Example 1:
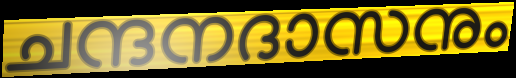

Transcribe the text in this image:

ചന്ദനദാസനും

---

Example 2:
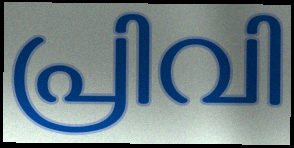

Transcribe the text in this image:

പ്രിവി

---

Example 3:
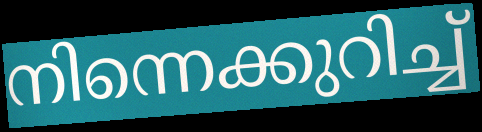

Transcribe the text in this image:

നിന്നെക്കുറിച്ച്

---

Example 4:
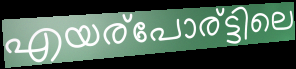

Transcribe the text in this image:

എയര്പോര്ട്ടിലെ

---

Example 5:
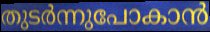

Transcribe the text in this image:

തുടർന്നുപോകാൻ